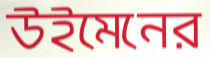
উইমেনের